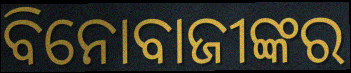
ବିନୋବାଜୀଙ୍କର